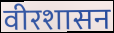
वीरशासन